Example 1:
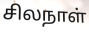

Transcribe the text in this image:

சிலநாள்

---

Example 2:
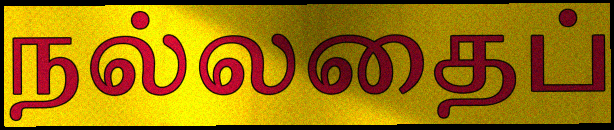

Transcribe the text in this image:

நல்லதைப்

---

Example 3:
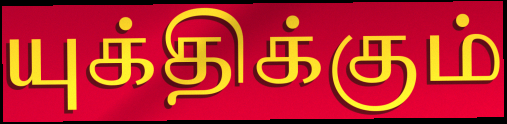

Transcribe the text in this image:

யுக்திக்கும்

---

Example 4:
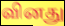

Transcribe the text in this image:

வினது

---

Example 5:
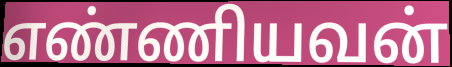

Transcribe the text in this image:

எண்ணியவன்